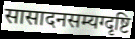
सासादनसम्यग्दृष्टि